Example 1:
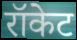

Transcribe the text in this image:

रॉकेट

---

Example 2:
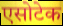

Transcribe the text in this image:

एसोटेक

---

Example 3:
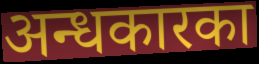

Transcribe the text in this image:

अन्धकारका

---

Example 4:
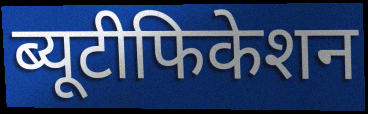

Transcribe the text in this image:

ब्यूटीफिकेशन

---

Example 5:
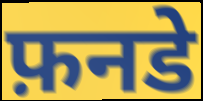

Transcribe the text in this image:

फ़नडे